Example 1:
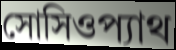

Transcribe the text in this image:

সোসিওপ্যাথ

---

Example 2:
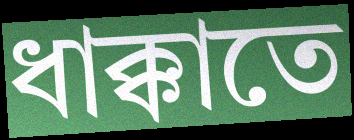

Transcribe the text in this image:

ধাক্কাতে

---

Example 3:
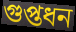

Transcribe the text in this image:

গুপ্তধন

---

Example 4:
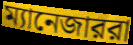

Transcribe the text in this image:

ম্যানেজাররা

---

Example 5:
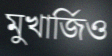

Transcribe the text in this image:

মুখার্জিও